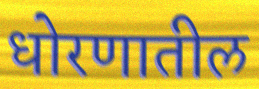
धोरणातील